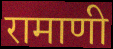
रामाणी